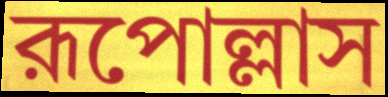
রূপোল্লাস